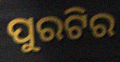
ପୁରଟିର